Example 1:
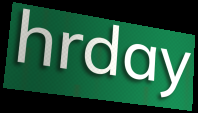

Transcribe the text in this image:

hrday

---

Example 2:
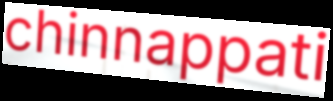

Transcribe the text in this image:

chinnappati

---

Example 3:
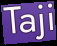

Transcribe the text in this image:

Taji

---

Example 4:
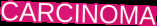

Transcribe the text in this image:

CARCINOMA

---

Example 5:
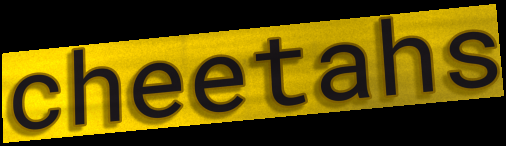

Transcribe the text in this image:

cheetahs